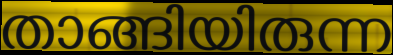
താങ്ങിയിരുന്ന